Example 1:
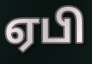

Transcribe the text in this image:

ஏபி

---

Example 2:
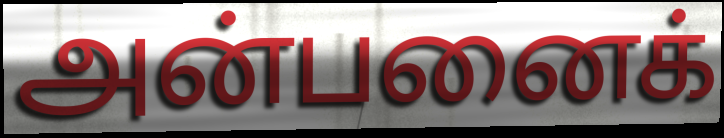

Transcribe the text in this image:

அன்பனைக்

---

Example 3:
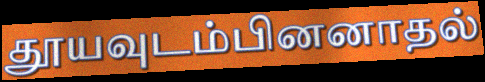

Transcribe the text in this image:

தூயவுடம்பினனாதல்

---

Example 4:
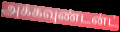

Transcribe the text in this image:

அக்கவுண்டன்ட்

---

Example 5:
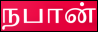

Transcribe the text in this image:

நபான்